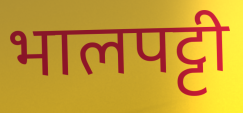
भालपट्टी